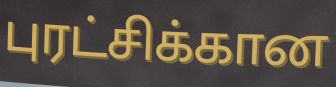
புரட்சிக்கான